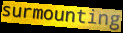
surmounting